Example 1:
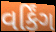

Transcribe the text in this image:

વર્કિંગ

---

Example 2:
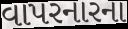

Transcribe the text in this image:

વાપરનારના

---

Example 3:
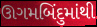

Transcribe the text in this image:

ઊગમબિંદુમાંથી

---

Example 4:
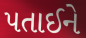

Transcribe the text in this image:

પતાઈને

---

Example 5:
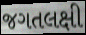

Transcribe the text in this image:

જગતલક્ષી